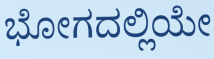
ಭೋಗದಲ್ಲಿಯೇ